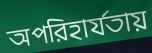
অপরিহার্যতায়